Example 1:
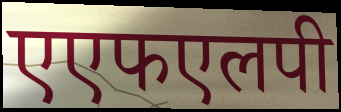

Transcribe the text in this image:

एएफएलपी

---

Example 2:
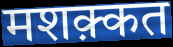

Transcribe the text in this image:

मशक़्कत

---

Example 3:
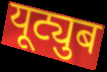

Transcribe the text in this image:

यूट्युब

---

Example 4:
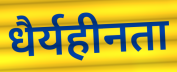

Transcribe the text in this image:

धैर्यहीनता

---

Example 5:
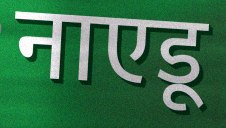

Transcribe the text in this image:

नाएडू